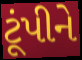
ટૂંપીને